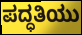
ಪದ್ಧತಿಯು